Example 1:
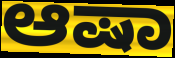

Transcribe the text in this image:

ಆಷಾ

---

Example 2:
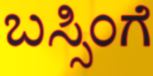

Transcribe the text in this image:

ಬಸ್ಸಿಂಗೆ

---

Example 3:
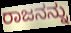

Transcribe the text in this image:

ರಾಜನನ್ನು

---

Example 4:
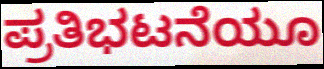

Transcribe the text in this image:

ಪ್ರತಿಭಟನೆಯೂ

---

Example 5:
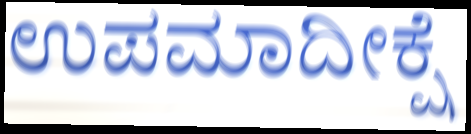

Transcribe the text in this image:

ಉಪಮಾದೀಕ್ಷೆ